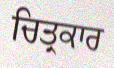
ਚਿਤ੍ਰਕਾਰ